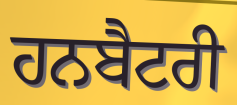
ਹਨਬੈਟਰੀ